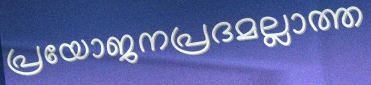
പ്രയോജനപ്രദമല്ലാത്ത